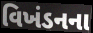
વિખંડનના